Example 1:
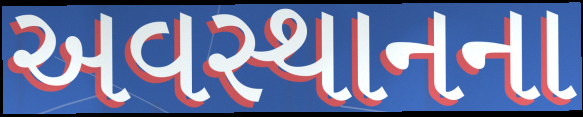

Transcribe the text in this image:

અવસ્થાનના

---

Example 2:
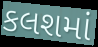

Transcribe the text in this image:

કલશમાં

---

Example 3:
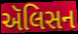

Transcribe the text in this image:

ઍલિસન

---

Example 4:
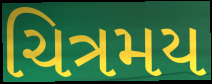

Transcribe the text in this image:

ચિત્રમય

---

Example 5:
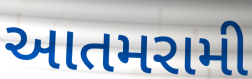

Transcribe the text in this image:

આતમરામી